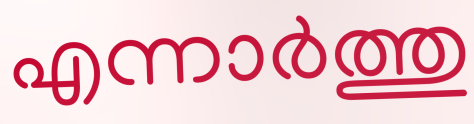
എന്നാർത്തു